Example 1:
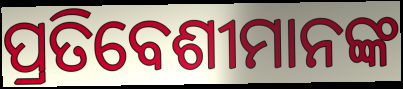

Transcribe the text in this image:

ପ୍ରତିବେଶୀମାନଙ୍କ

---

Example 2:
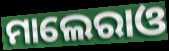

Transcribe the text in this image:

ମାଲେରାଓ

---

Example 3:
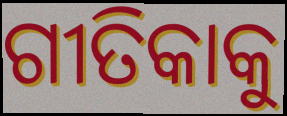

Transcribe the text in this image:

ଗୀତିକାକୁ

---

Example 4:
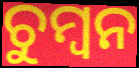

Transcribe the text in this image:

ଚୁମ୍ବନ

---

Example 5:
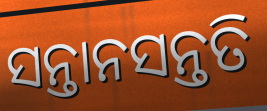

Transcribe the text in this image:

ସନ୍ତାନସନ୍ତତି